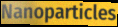
Nanoparticles